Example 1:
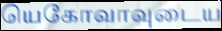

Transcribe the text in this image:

யெகோவாவுடைய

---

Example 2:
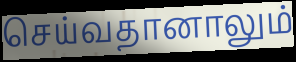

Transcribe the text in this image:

செய்வதானாலும்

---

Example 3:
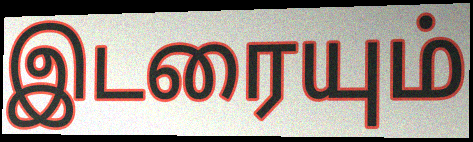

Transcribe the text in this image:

இடரையும்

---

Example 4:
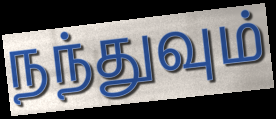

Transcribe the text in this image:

நந்துவும்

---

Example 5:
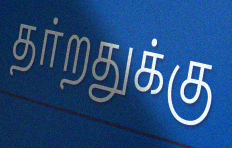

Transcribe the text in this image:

தர்றதுக்கு